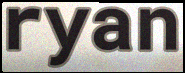
ryan